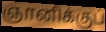
ஞானிக்குப்